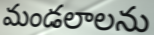
మండలాలను